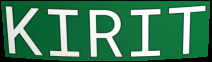
KIRIT